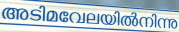
അടിമവേലയിൽനിന്നു